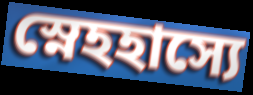
স্নেহহাস্যে